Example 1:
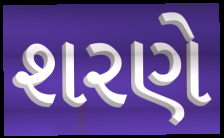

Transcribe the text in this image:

શરણે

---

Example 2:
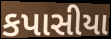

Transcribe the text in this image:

કપાસીયા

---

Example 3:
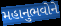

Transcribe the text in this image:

મહાનુભવોને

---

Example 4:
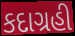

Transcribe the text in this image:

કદાગ્રહી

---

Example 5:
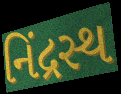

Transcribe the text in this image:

નિંદ્રસ્થ